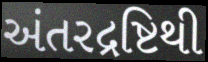
અંતરદ્રષ્ટિથી